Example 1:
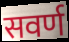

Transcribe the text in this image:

सवर्ण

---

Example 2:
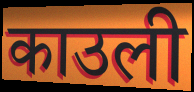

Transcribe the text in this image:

काउली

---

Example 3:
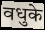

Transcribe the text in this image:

वधुके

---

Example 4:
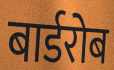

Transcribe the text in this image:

बार्डरोब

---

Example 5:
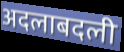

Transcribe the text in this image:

अदलाबदली